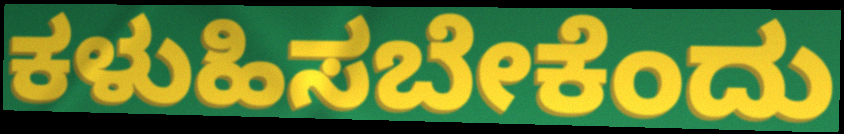
ಕಳುಹಿಸಬೇಕೆಂದು